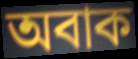
অবাক